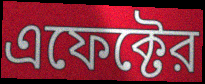
এফেক্টের